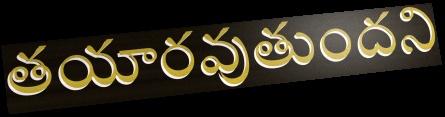
తయారవుతుందని